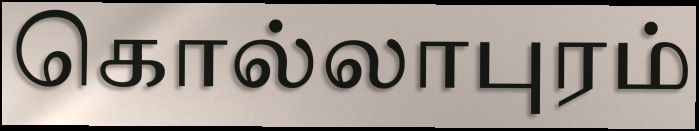
கொல்லாபுரம்